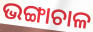
ଭଙ୍ଗାଚାଳ